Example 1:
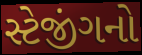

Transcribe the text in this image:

સ્ટેજીંગનો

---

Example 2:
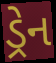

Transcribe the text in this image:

ડ્રેન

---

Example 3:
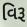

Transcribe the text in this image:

વિરૂ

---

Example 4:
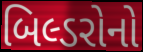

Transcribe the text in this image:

બિલ્ડરોનો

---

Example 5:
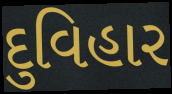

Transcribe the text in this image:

દુવિહાર